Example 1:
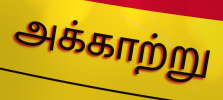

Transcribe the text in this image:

அக்காற்று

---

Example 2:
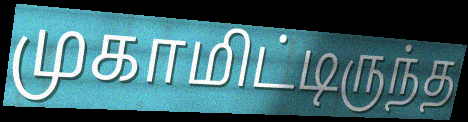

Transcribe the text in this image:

முகாமிட்டிருந்த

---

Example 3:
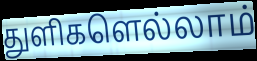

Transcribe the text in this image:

துளிகளெல்லாம்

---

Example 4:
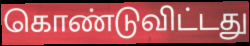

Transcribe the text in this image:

கொண்டுவிட்டது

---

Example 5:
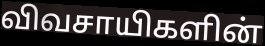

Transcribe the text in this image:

விவசாயிகளின்